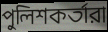
পুলিশকর্তারা